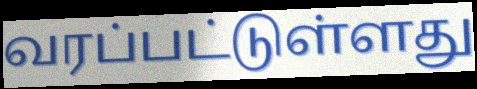
வரப்பட்டுள்ளது